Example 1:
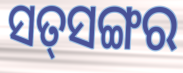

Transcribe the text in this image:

ସତ୍‌ସଙ୍ଗର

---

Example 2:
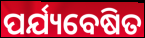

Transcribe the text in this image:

ପର୍ଯ୍ୟବେଷିତ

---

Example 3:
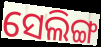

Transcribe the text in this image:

ସେଲିଙ୍ଗ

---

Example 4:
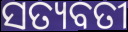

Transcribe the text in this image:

ସତ୍ୟବତୀ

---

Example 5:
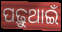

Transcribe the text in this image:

ପଢ଼ୁଥାଇଁ